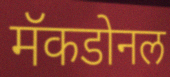
मॅकडोनल